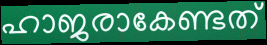
ഹാജരാകേണ്ടത്